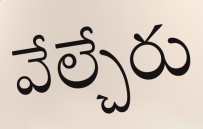
వేల్చేరు